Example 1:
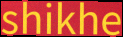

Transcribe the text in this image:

shikhe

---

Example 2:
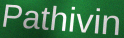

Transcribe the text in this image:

Pathivin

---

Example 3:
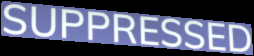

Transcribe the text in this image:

SUPPRESSED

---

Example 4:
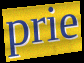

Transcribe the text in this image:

prie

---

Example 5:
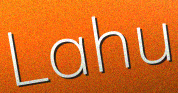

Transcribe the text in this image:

Lahu